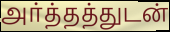
அர்த்தத்துடன்